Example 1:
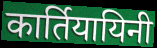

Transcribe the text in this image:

कार्तियायिनी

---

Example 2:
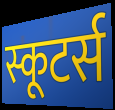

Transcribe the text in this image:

स्‍कूटर्स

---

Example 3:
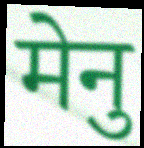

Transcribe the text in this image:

मेनु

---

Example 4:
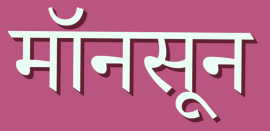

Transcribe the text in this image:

मॉनसून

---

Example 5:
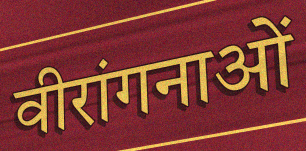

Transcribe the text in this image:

वीरांगनाओं